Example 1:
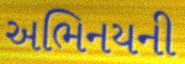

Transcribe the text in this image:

અભિનયની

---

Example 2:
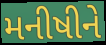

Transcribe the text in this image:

મનીષીને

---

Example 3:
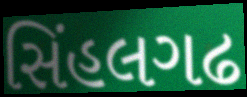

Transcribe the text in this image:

સિંહલગઢ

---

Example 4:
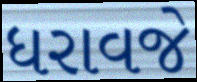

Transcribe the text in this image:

ધરાવજે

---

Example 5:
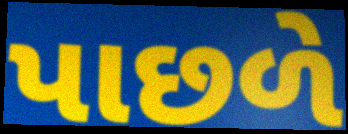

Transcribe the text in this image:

પાછળે